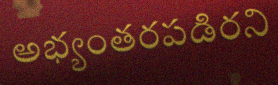
అభ్యంతరపడిరని